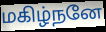
மகிழ்நனே